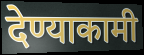
देण्याकामी